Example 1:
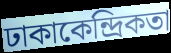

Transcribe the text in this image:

ঢাকাকেন্দ্রিকতা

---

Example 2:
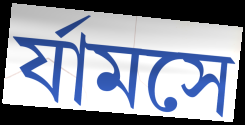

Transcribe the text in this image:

র্যামসে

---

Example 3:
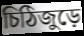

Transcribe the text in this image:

চিঠিজুড়ে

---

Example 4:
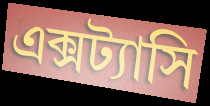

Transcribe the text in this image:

এক্সট্যাসি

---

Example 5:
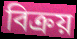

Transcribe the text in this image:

বিক্রয়